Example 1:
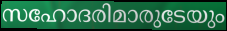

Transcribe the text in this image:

സഹോദരിമാരുടേയും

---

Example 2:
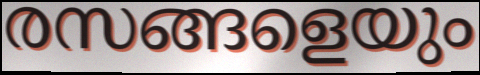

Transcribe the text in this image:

രസങ്ങളെയും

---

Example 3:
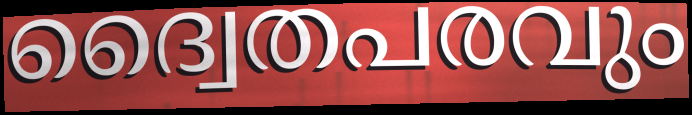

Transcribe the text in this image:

ദ്വൈതപരവും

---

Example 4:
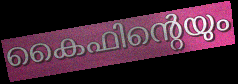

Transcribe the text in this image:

കൈഫിന്റെയും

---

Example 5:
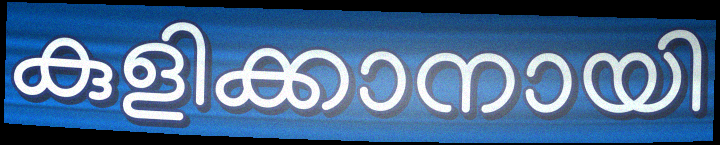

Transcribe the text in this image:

കുളിക്കാനായി